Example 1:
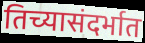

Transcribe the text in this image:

तिच्यासंदर्भात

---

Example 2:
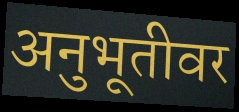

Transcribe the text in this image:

अनुभूतीवर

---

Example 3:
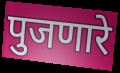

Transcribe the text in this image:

पुजणारे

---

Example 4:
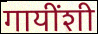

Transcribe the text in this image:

गायींशी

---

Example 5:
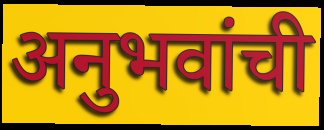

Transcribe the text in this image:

अनुभवांची